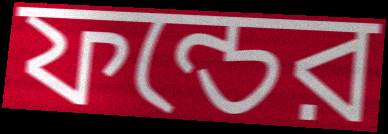
ফন্ডের